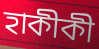
হাকীকী